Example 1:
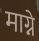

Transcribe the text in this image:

माग्ने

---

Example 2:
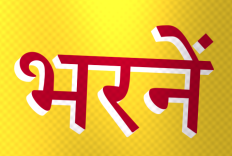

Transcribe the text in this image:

भरनें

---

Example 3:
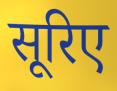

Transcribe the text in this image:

सूरिए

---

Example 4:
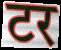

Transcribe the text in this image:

टर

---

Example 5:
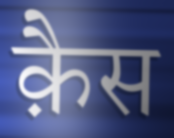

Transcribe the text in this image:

क़ैस